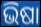
ଭିଷା